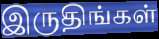
இருதிங்கள்